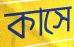
কাসে